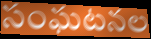
సంఘటనల